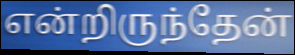
என்றிருந்தேன்